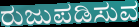
ರುಜುಪಡಿಸುವ